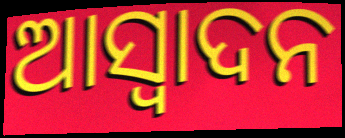
ଆସ୍ଵାଦନ